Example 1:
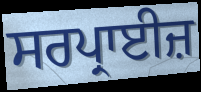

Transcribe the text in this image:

ਸਰਪ੍ਰਾਈਜ਼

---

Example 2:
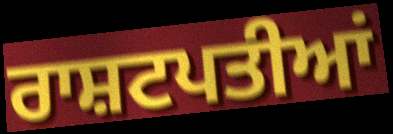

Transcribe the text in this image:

ਰਾਸ਼ਟਪਤੀਆਂ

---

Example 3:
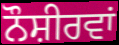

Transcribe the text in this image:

ਨੌਸ਼ੀਰਵਾਂ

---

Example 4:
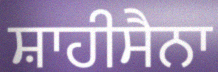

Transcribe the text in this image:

ਸ਼ਾਹੀਸੈਨਾ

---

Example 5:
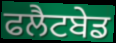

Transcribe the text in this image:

ਫਲੈਟਬੇਡ